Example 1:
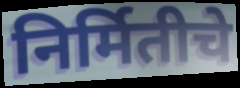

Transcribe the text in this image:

निर्मितीचे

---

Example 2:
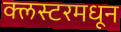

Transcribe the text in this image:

क्लस्टरमधून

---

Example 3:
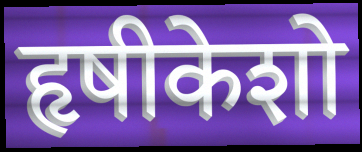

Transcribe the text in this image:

हृषीकेशो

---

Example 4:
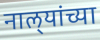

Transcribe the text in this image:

नाल्यांच्या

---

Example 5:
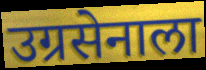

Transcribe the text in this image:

उग्रसेनाला